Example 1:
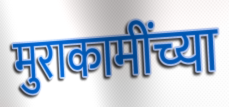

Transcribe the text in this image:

मुराकामींच्या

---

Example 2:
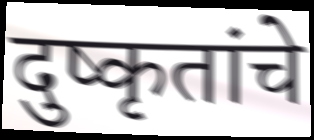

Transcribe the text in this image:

दुष्कृतांचे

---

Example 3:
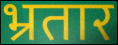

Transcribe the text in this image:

भ्रतार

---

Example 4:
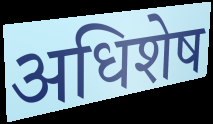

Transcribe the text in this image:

अधिशेष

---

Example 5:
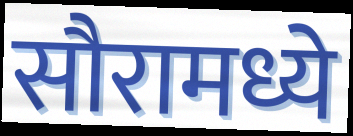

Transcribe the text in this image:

सौरामध्ये